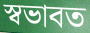
স্বভাবত